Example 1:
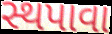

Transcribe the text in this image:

સ્થપાવા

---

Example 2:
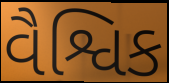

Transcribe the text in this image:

વૈશ્વિક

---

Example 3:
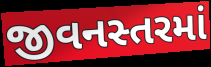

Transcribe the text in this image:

જીવનસ્તરમાં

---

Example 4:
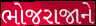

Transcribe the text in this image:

ભોજરાજાને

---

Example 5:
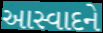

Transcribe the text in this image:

આસ્વાદને